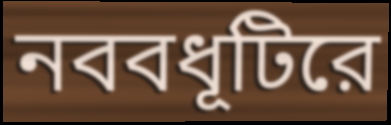
নববধূটিরে